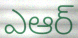
ఎఆర్